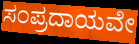
ಸಂಪ್ರದಾಯವೇ